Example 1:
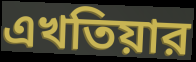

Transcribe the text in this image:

এখতিয়ার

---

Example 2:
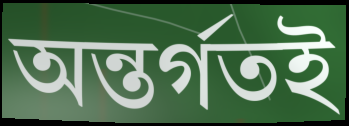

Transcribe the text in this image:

অন্তর্গতই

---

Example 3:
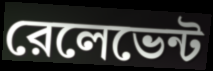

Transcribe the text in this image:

রেলেভেন্ট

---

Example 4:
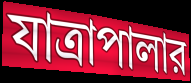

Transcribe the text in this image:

যাত্রাপালার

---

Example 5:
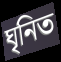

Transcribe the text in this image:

ঘৃনিত